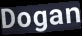
Dogan